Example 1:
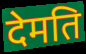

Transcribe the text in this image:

देमति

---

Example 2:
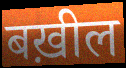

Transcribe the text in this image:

बख़ील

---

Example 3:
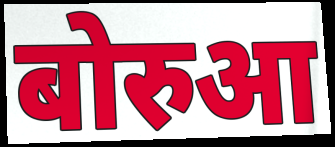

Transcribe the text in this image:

बोरुआ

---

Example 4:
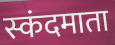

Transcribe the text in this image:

स्‍कंदमाता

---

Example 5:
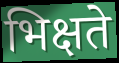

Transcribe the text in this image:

भिक्षते